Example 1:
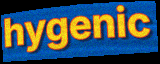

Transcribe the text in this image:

hygenic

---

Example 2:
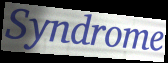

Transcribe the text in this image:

Syndrome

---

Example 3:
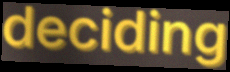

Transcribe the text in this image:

deciding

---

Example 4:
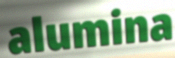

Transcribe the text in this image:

alumina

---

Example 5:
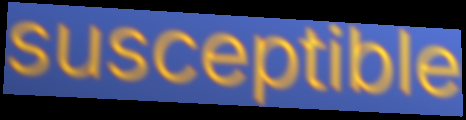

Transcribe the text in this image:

susceptible